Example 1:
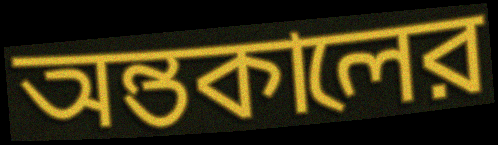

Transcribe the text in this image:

অন্তকালের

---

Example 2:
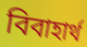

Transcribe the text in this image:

বিবাহার্থ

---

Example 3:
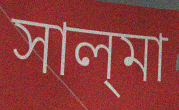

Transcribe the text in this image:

সাল্‌মা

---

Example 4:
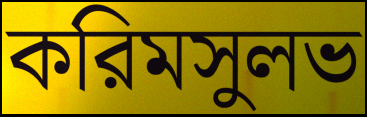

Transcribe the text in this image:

করিমসুলভ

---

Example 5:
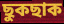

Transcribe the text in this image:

ছুকছাক